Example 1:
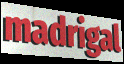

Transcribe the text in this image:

madrigal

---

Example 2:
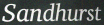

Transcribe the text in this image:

Sandhurst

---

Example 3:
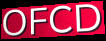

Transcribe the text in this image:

OFCD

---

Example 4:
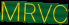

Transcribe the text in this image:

MRVC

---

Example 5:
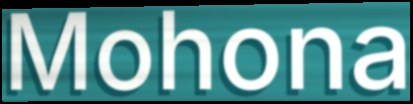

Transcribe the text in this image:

Mohona